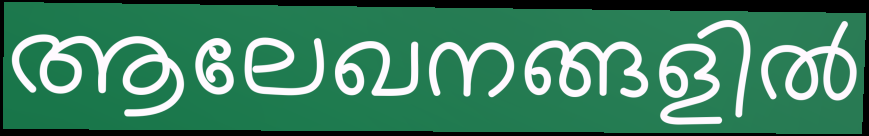
ആലേഖനങ്ങളിൽ